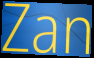
Zan